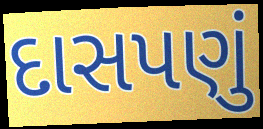
દાસપણું